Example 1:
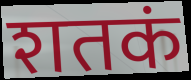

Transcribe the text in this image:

शतकं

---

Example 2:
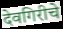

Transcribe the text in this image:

देवगिरीचे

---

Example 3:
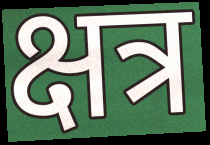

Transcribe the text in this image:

क्षत्र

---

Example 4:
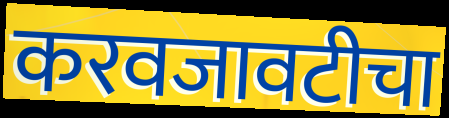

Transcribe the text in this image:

करवजावटीचा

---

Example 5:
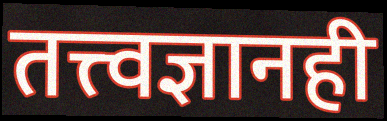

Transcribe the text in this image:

तत्त्वज्ञानही